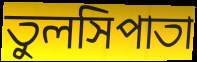
তুলসিপাতা